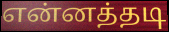
என்னத்தடி